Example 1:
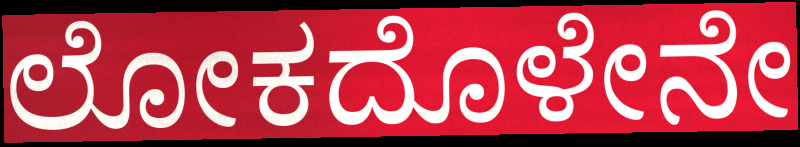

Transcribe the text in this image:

ಲೋಕದೊಳೇನೇ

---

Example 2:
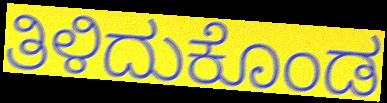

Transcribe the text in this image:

ತಿಳಿದುಕೊಂಡ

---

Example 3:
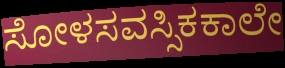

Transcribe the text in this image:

ಸೋಳಸವಸ್ಸಿಕಕಾಲೇ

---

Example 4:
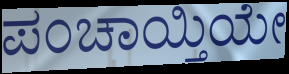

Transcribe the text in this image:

ಪಂಚಾಯ್ತಿಯೇ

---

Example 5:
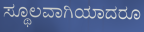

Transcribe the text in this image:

ಸ್ಥೂಲವಾಗಿಯಾದರೂ